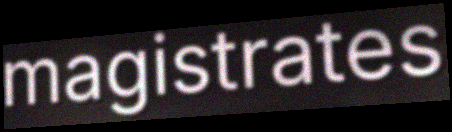
magistrates